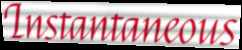
Instantaneous